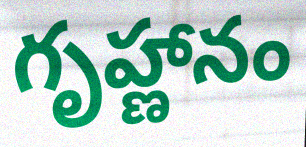
గృహ్ణానం